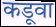
कडूवा